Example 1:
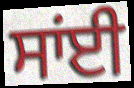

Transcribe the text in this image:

ਸਾਂਈ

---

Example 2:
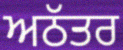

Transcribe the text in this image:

ਅਠੱਤਰ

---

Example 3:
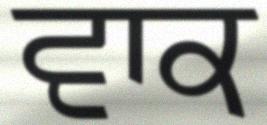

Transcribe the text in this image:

ਵਾਕ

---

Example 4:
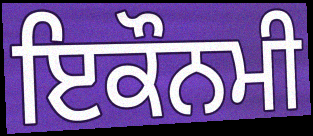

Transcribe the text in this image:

ਇਕੌਨਮੀ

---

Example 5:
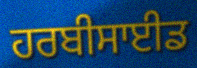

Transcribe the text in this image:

ਹਰਬੀਸਾਈਡ